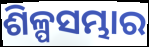
ଶିଳ୍ପସମ୍ଭାର